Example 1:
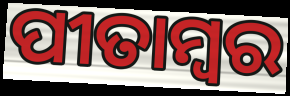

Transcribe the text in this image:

ପୀତାମ୍ୱର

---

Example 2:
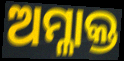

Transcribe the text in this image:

ଅମ୍ଳାକ୍ତ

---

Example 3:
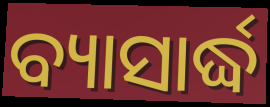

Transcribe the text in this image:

ବ୍ୟାସାର୍ଦ୍ଧ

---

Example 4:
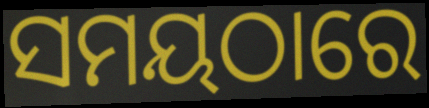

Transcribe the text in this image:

ସମୟଠାରେ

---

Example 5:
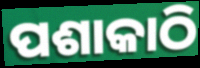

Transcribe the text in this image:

ପଶାକାଠି